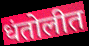
धंतोलीत